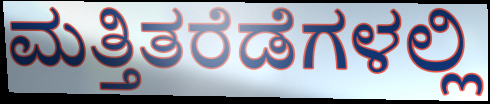
ಮತ್ತಿತರೆಡೆಗಳಲ್ಲಿ